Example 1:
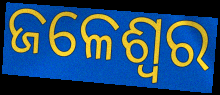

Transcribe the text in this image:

ଜଳେଶ୍ବର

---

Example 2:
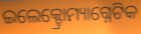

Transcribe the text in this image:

ଇଲେକ୍ଟ୍ରୋମ୍ୟାଗ୍ନେଟିକ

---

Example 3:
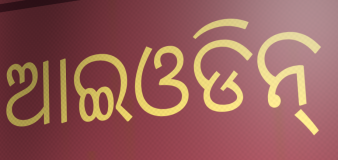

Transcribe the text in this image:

ଆଇଓଡିନ୍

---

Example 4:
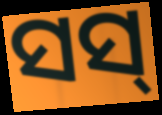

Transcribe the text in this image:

ସସ୍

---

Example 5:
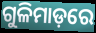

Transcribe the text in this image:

ଗୁଳିମାଡ଼ରେ